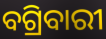
ବଗ୍ରିବାରୀ